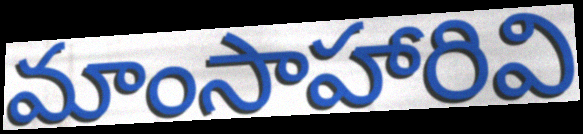
మాంసాహారివి